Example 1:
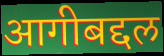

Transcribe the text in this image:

आगीबद्दल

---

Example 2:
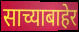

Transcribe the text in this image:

साच्याबाहेर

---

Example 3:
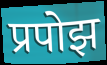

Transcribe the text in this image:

प्रपोझ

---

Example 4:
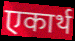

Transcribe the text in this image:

एकार्थ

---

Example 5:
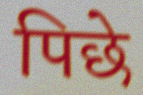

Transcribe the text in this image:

पिछे